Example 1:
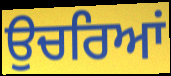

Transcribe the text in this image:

ਉਚਰਿਆਂ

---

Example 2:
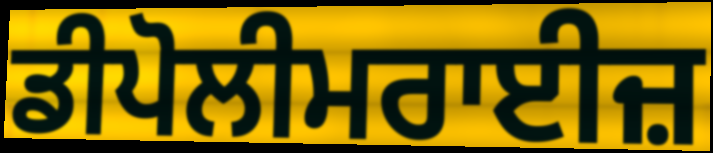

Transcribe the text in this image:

ਡੀਪੋਲੀਮਰਾਈਜ਼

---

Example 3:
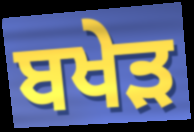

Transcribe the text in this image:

ਬਖੇੜ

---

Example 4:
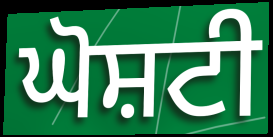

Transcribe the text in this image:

ਘੋਸ਼ਟੀ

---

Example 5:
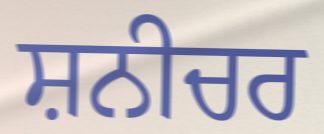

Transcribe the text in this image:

ਸ਼ਨੀਚਰ